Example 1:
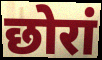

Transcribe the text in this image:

छोरां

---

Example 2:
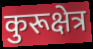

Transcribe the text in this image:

कुरूक्षेत्र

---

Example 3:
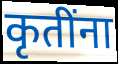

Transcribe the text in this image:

कृतींना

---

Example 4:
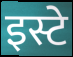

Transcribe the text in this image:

इस्टे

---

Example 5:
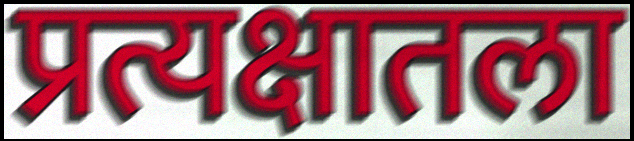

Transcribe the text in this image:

प्रत्यक्षातला